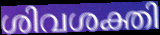
ശിവശക്തി